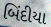
બિંદીયા